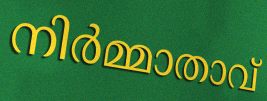
നിർമ്മാതാവ്